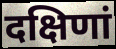
दक्षिणां